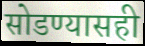
सोडण्यासही